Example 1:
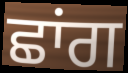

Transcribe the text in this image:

ਛਾਂਗ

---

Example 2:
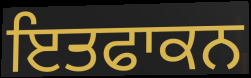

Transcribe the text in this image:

ਇਤਫਾਕਨ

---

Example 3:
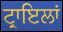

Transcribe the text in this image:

ਟ੍ਰਾਇਲਾਂ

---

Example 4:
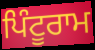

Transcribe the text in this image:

ਪਿੰਟੂਰਾਮ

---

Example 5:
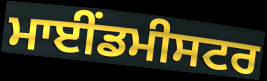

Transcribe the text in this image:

ਮਾਈਂਡਮੀਸਟਰ